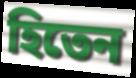
হিতেন